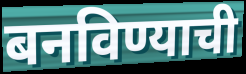
बनविण्याची